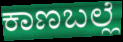
ಕಾಣಬಲ್ಲೆ